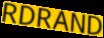
RDRAND